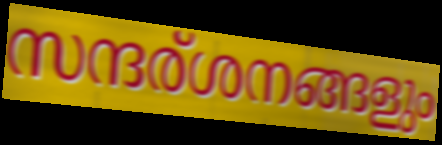
സന്ദര്ശനങ്ങളും